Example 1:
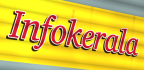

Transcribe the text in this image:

Infokerala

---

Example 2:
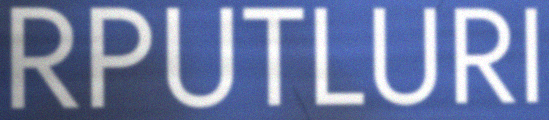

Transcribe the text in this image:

RPUTLURI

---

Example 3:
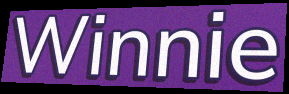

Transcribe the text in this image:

Winnie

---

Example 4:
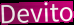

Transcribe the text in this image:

Devito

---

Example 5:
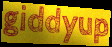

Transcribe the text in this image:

giddyup